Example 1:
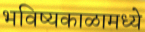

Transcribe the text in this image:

भविष्यकाळामध्ये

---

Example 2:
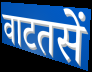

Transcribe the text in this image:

वाटतसें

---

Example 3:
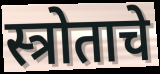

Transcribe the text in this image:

स्त्रोताचे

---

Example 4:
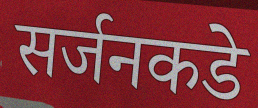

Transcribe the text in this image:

सर्जनकडे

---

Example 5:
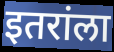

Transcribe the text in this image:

इतरांला